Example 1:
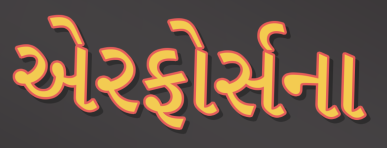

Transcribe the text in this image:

એરફોર્સના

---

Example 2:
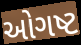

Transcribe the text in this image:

ઓગષ્ટ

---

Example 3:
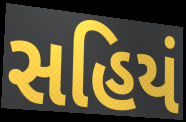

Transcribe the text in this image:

સહિયં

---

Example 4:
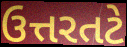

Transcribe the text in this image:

ઉત્તરતટે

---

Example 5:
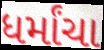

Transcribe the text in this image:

ધર્માંચા